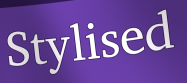
Stylised